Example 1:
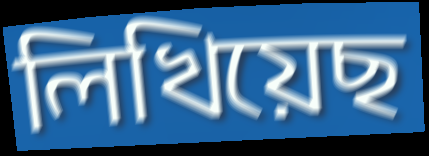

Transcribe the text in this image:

লিখিয়েছ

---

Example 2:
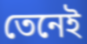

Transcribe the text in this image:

তেনেই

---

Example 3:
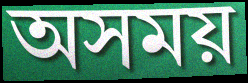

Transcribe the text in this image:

অসময়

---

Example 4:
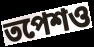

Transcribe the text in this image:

তপেশও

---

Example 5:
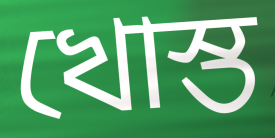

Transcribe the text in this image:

খোস্ত